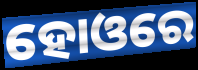
ହୋଓରେ